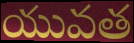
యువత